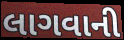
લાગવાની